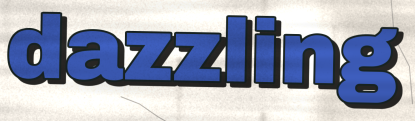
dazzling